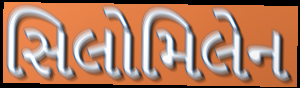
સિલોમિલેન